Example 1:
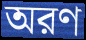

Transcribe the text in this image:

অরণ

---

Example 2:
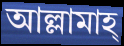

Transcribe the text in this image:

আল্লামাহ্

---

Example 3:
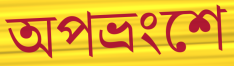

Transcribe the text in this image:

অপভ্রংশে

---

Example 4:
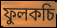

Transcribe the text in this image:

ফুলকচি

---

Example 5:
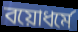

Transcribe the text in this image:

বয়োধর্মে